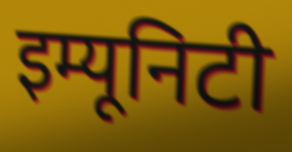
इम्‍यूनिटी